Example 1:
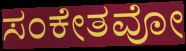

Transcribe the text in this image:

ಸಂಕೇತವೋ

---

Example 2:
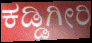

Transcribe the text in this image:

ಕಡ್ಡಿಗೀರಿ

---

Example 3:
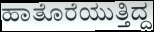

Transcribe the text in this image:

ಹಾತೊರೆಯುತ್ತಿದ್ದ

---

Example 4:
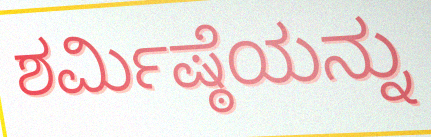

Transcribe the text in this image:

ಶರ್ಮಿಷ್ಠೆಯನ್ನು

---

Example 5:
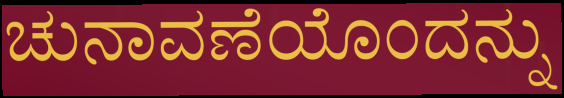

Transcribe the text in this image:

ಚುನಾವಣೆಯೊಂದನ್ನು